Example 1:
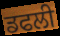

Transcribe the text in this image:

ਡਫਲੀ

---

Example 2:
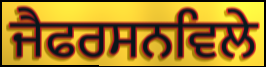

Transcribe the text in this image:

ਜੈਫਰਸਨਵਿਲੇ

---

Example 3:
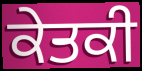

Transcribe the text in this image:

ਕੇਤਕੀ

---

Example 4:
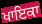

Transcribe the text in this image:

ਖਾਇਕਾ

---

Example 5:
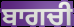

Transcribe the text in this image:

ਬਾਗਚੀ